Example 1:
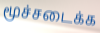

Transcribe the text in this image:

மூச்சடைக்க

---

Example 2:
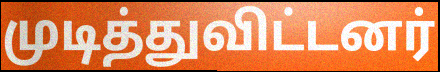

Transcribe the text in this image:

முடித்துவிட்டனர்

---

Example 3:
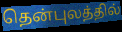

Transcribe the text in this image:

தென்புலத்தில்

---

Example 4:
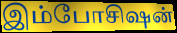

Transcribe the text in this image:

இம்போசிஷன்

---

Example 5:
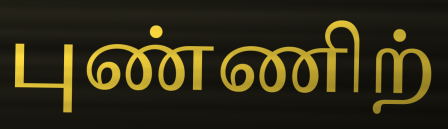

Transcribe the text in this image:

புண்ணிற்